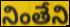
నింతేని